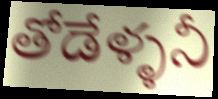
తోడేళ్ళనీ